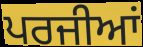
ਪਰਜੀਆਂ